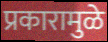
प्रकारामुळे